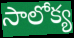
సాలోక్య